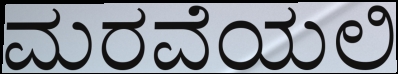
ಮರವೆಯಲಿ